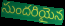
సుందరియైన